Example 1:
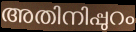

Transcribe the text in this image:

അതിനിപ്പുറം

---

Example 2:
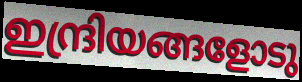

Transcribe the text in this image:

ഇന്ദ്രിയങ്ങളോടു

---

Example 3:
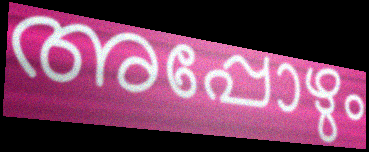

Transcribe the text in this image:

അപ്പോഴും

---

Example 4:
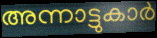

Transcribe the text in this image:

അന്നാട്ടുകാർ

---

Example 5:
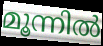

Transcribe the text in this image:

മൂന്നിൽ